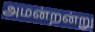
அமன்றன்று